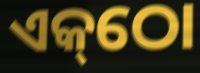
ଏକ୍‌ଠୋ